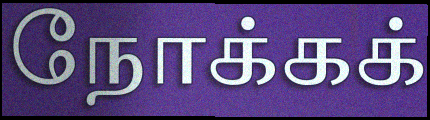
நோக்கக்